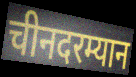
चीनदरम्यान